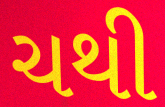
ચથી